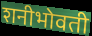
शनीभोवती